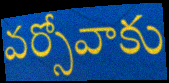
వర్సోవాకు